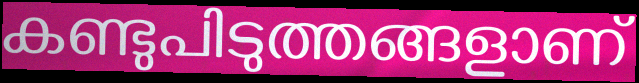
കണ്ടുപിടുത്തങ്ങളാണ്